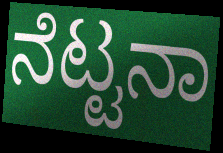
ನೆಟ್ಟನಾ